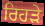
ਰਿਹੜੇ